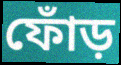
ফোঁড়